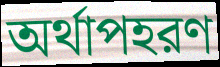
অর্থাপহরণ